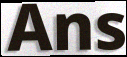
Ans